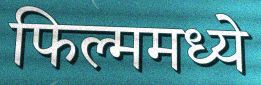
फिल्ममध्ये